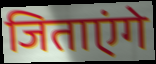
जिताएंगे